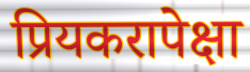
प्रियकरापेक्षा